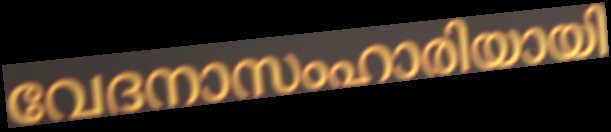
വേദനാസംഹാരിയായി